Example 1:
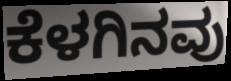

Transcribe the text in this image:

ಕೆಳಗಿನವು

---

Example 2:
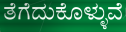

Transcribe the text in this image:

ತೆಗೆದುಕೊಳ್ಳುವೆ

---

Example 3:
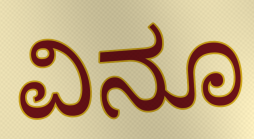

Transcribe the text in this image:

ವಿನೂ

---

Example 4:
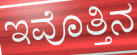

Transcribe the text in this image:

ಇವೊತ್ತಿನ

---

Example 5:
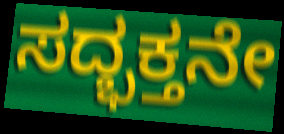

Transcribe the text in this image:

ಸದ್ಭಕ್ತನೇ